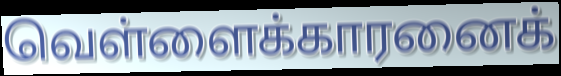
வெள்ளைக்காரனைக்